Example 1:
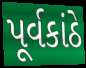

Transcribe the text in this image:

પૂર્વકાંઠે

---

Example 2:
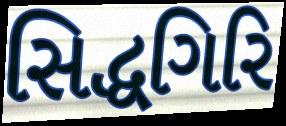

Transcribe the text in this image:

સિદ્ધગિરિ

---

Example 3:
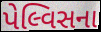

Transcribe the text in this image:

પેલ્વિસના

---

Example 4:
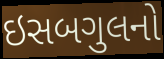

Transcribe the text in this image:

ઇસબગુલનો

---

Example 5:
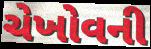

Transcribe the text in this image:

ચેખોવની